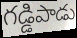
గడ్డిపాడు